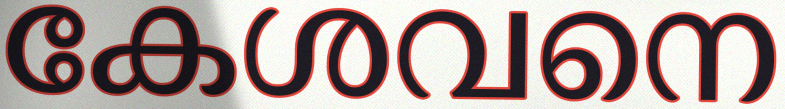
കേശവനെ